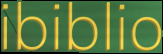
ibiblio